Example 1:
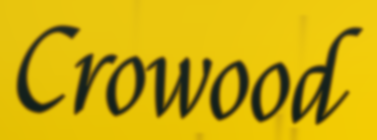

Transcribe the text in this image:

Crowood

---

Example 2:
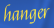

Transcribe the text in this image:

hanger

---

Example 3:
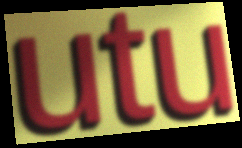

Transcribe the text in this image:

utu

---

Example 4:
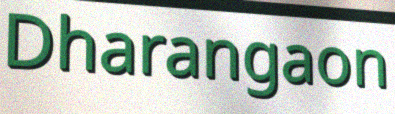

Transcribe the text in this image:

Dharangaon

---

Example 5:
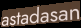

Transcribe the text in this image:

astadasan